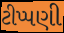
ટીપ્પણી